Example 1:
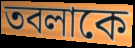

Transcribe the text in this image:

তবলাকে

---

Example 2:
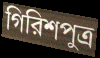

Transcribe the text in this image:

গিরিশপুত্র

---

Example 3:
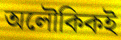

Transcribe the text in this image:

অলৌকিকই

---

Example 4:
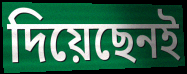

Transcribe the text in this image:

দিয়েছেনই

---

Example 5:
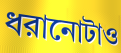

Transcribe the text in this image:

ধরানোটাও